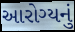
આરોગ્યનું